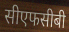
सीएफसीबी